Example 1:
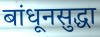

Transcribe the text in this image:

बांधूनसुद्धा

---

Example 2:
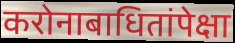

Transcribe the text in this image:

करोनाबाधितांपेक्षा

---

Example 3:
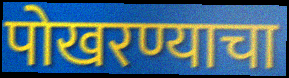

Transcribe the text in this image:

पोखरण्याचा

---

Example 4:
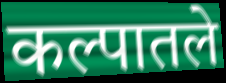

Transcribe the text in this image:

कल्पातले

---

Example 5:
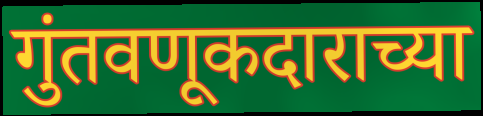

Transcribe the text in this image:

गुंतवणूकदाराच्या